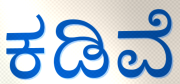
ಕಡಿವೆ